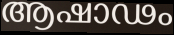
ആഷാഢം